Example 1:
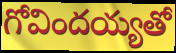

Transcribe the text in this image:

గోవిందయ్యతో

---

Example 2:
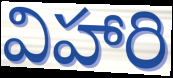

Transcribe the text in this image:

విహారి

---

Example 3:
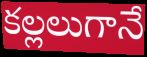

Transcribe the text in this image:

కల్లలుగానే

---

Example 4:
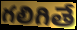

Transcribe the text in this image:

గలిగితే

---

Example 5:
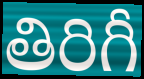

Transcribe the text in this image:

తిరిగీ